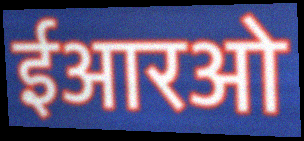
ईआरओ